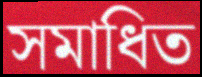
সমাধিত